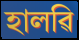
হালৱি